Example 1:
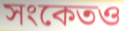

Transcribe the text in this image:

সংকেতও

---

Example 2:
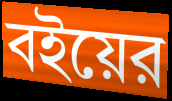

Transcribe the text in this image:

বইয়ের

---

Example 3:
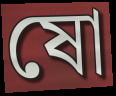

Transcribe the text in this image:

ষো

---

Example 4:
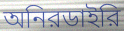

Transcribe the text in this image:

অনিরডাইরি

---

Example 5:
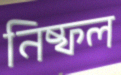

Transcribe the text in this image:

নিষ্ফল